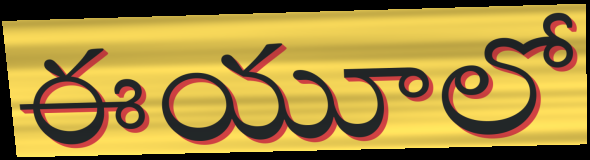
ఈయూలో